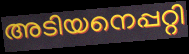
അടിയനെപ്പറ്റി